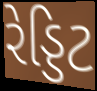
રેડ્ડિટ